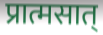
प्रात्मसात्